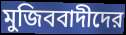
মুজিববাদীদের